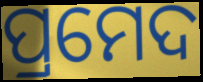
ପ୍ରମେଦ